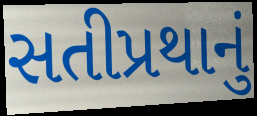
સતીપ્રથાનું